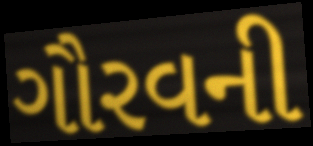
ગૌરવની